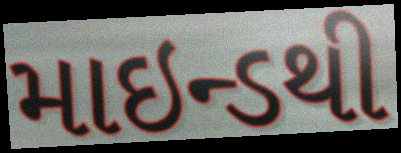
માઇન્ડથી